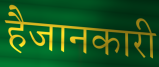
हैजानकारी